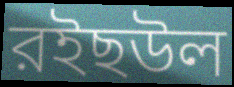
রইছউল